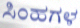
ಸಿಂಹಗಳ